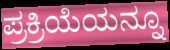
ಪ್ರಕ್ರಿಯೆಯನ್ನೂ